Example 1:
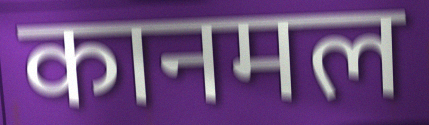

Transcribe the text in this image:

कानमल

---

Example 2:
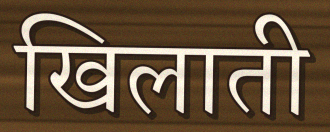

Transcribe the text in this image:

खिलाती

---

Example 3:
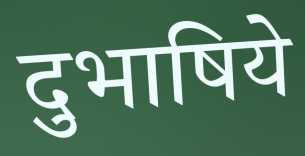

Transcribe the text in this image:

दुभाषिये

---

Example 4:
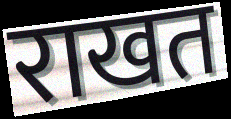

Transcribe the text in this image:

राखत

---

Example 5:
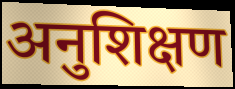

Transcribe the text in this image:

अनुशिक्षण